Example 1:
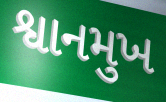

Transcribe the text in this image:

શ્વાનમુખ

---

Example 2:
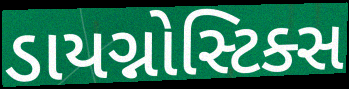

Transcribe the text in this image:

ડાયગ્નોસ્ટિક્સ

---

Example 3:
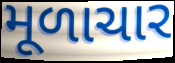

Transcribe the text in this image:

મૂળાચાર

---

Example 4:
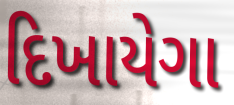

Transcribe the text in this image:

દિખાયેગા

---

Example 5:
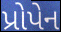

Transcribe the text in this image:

પ્રોપેન